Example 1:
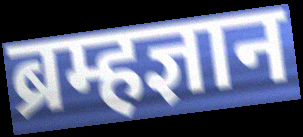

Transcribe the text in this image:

ब्रम्हज्ञान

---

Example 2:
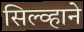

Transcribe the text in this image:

सिल्व्हाने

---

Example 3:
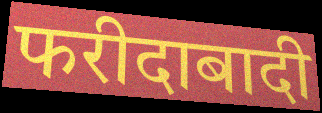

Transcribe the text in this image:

फरीदाबादी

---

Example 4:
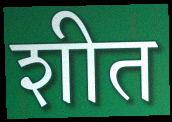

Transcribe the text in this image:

शीत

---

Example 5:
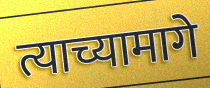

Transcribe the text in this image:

त्याच्यामागे